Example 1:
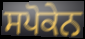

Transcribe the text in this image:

ਸਪੋਕੇਨ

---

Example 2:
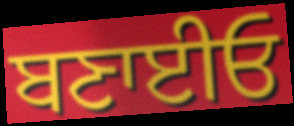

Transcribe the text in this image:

ਬਣਾਈਓ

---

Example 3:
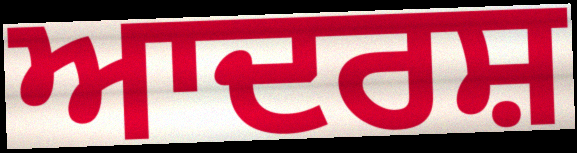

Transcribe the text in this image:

ਆਦਰਸ਼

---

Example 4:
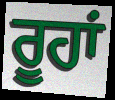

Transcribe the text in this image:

ਰੂਹਾਂ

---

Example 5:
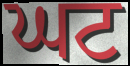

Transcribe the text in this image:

ਘਟ